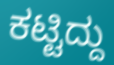
ಕಟ್ಟಿದ್ದು